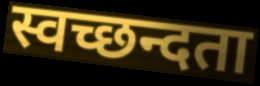
स्वच्छन्दता